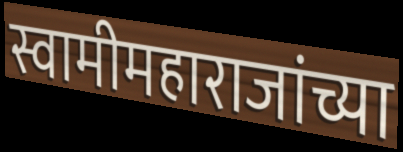
स्वामीमहाराजांच्या